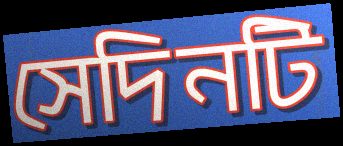
সেদিনটি